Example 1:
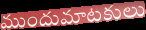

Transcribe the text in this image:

ముందుమాటకులు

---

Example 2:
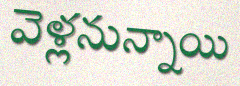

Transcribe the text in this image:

వెళ్లనున్నాయి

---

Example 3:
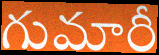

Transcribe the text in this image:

గుమారీ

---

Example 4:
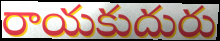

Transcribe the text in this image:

రాయకుదురు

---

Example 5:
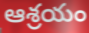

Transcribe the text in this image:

ఆశ్రయం